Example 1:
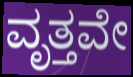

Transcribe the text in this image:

ವೃತ್ತವೇ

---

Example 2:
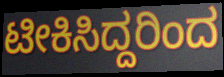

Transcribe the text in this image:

ಟೀಕಿಸಿದ್ದರಿಂದ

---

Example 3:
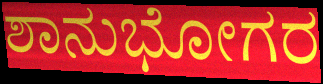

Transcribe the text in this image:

ಶಾನುಭೋಗರ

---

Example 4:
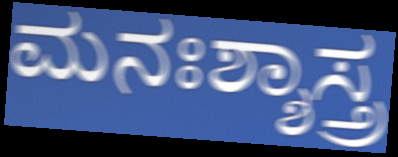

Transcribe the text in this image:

ಮನಃಶ್ಶಾಸ್ತ್ರ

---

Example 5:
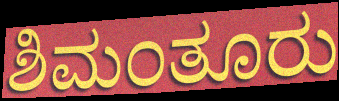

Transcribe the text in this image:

ಶಿಮಂತೂರು